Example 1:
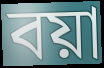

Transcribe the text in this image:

বয়া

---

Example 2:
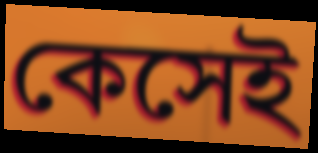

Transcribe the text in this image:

কেসেই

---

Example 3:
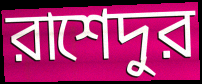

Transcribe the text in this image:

রাশেদুর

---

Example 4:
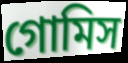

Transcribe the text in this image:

গোমিস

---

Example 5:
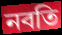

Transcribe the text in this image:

নবতি